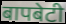
बापबेटी